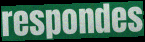
respondes